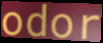
odor